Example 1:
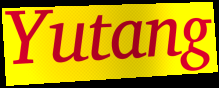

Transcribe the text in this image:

Yutang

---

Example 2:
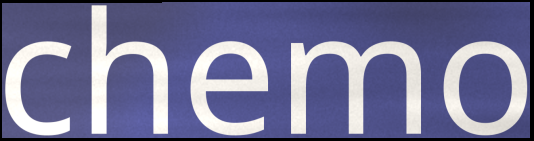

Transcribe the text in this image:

chemo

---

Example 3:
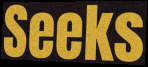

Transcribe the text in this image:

Seeks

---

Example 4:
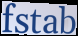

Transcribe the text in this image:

fstab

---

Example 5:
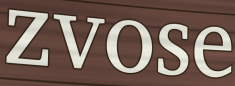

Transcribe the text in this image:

zvose